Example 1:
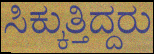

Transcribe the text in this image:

ಸಿಕ್ಕುತ್ತಿದ್ದರು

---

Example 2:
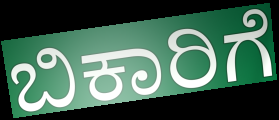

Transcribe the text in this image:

ಬಿಕಾರಿಗೆ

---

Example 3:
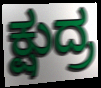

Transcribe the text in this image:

ಕ್ಷುದ್ರ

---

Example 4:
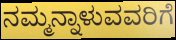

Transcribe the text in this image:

ನಮ್ಮನ್ನಾಳುವವರಿಗೆ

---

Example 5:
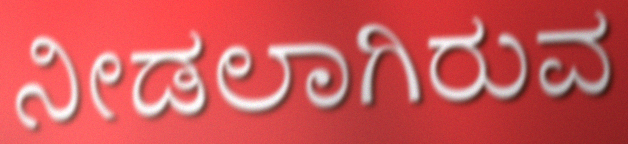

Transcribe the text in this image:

ನೀಡಲಾಗಿರುವ